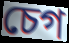
চেগ